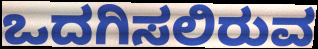
ಒದಗಿಸಲಿರುವ